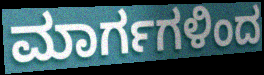
ಮಾರ್ಗಗಳಿಂದ